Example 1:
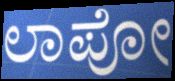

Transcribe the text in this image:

ಲಾಪೋ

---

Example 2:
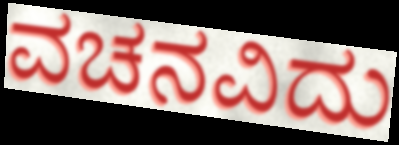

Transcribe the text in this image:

ವಚನವಿದು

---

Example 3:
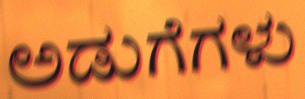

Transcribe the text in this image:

ಅಡುಗೆಗಳು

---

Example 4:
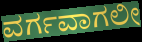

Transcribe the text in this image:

ವರ್ಗವಾಗಲೀ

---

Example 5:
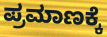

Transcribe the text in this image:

ಪ್ರಮಾಣಕ್ಕೆ